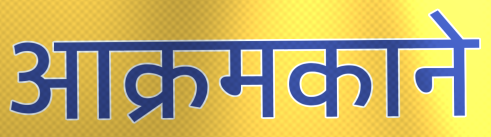
आक्रमकाने